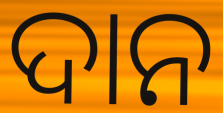
ଦାନ